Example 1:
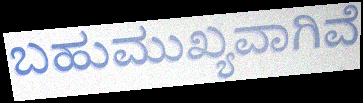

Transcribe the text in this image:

ಬಹುಮುಖ್ಯವಾಗಿವೆ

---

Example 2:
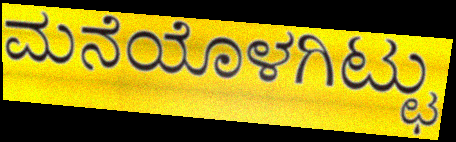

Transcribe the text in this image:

ಮನೆಯೊಳಗಿಟ್ಟು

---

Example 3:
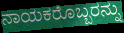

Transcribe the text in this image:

ನಾಯಕರೊಬ್ಬರನ್ನು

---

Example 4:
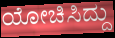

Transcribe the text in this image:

ಯೋಚಿಸಿದ್ದು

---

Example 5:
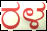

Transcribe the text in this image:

ರಳ